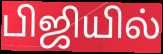
பிஜியில்